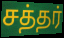
சத்தர்